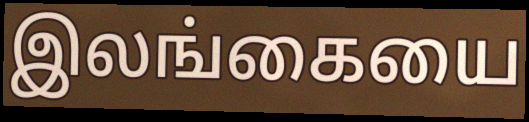
இலங்கையை